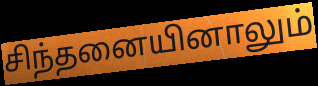
சிந்தனையினாலும்